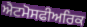
ਐਟਮੋਸਫੀਅਰਿਕ